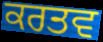
ਕਰਤਵ